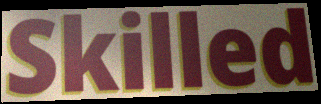
Skilled